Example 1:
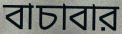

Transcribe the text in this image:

বাচাবার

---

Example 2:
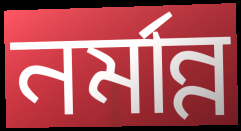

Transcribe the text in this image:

নর্মান্ন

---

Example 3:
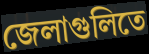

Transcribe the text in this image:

জেলাগুলিতে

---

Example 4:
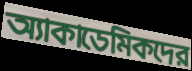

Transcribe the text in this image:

অ্যাকাডেমিকদের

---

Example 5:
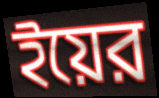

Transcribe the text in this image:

ইয়ের